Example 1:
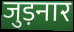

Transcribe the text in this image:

जुड़नार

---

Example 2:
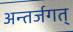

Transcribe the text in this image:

अन्तर्जगत्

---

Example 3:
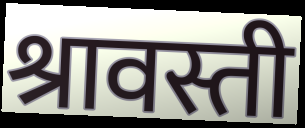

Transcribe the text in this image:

श्रावस्ती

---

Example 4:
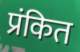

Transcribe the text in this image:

प्रंकित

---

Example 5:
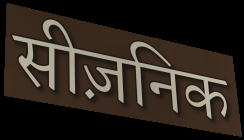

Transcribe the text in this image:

सीज़निक